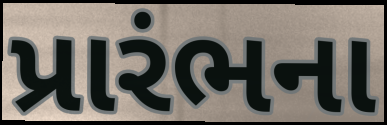
પ્રારંભના